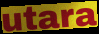
utara